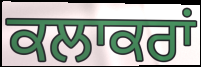
ਕਲਾਕਰਾਂ